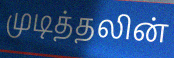
முடித்தலின்